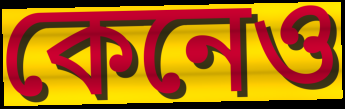
কেনেও